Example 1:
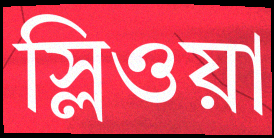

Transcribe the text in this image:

স্লিওয়া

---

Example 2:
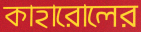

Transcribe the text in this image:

কাহারোলের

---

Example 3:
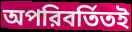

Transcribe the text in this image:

অপরিবর্তিতই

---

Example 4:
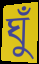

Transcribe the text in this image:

ঘুঁ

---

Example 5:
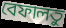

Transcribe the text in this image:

বেফালতু